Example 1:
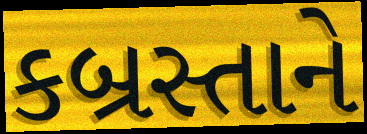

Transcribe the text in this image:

કબ્રસ્તાને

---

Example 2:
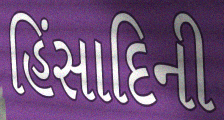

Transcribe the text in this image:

હિંસાદિની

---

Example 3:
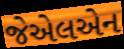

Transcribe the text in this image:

જેએલએન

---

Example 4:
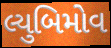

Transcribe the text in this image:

લ્યુબિમોવ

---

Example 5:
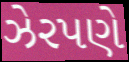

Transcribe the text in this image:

ઝેરપણે